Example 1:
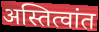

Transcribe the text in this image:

अस्तित्वांत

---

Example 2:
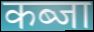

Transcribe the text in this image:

कब्जा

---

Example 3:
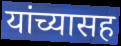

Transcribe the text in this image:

यांच्यासह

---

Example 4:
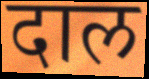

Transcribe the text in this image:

दाल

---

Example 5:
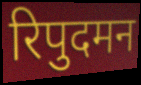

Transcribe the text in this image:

रिपुदमन